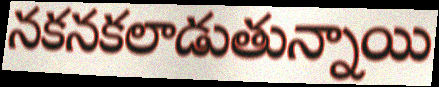
నకనకలాడుతున్నాయి